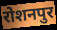
रोशनपुर